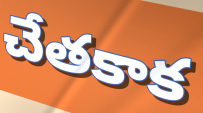
చేతకాక